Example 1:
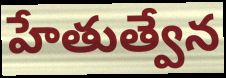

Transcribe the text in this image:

హేతుత్వేన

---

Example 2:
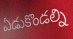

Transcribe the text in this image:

ఏడుకొండల్ని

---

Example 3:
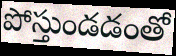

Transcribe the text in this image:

పోస్తుండడంతో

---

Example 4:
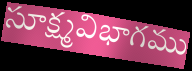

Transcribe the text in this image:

సూక్ష్మవిభాగము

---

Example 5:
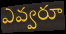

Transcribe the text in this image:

ఎవ్వరూ